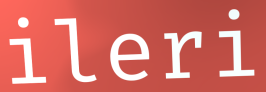
ileri